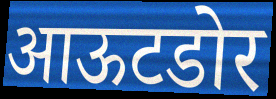
आऊटडोर